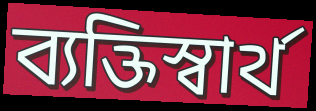
ব্যক্তিস্বার্থ